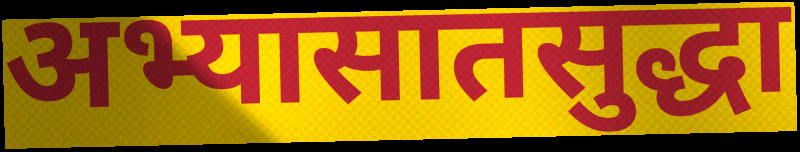
अभ्यासातसुद्धा